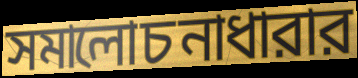
সমালোচনাধারার